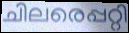
ചിലരെപ്പറ്റി